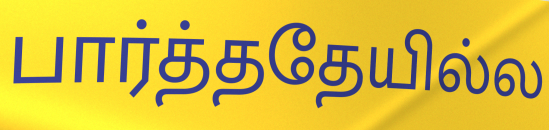
பார்த்ததேயில்ல